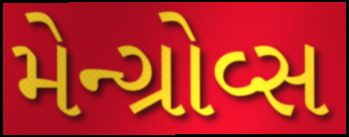
મેન્ગ્રોવ્સ